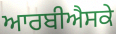
ਆਰਬੀਐਸਕੇ